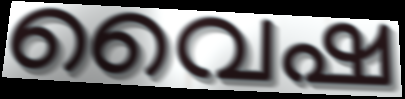
വൈഷ